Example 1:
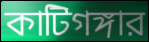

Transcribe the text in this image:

কাটিগঙ্গার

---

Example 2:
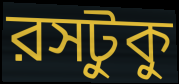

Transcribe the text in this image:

রসটুকু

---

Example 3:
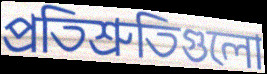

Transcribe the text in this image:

প্রতিশ্রুতিগুলো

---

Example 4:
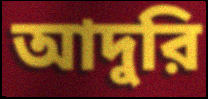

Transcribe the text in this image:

আদুরি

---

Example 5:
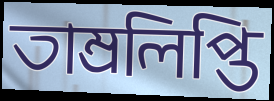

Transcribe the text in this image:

তাম্রলিপ্তি